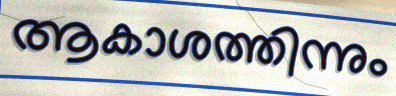
ആകാശത്തിന്നും